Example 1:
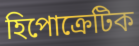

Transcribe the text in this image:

হিপোক্রেটিক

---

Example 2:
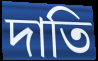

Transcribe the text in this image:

দাতি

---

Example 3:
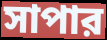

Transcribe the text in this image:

সাপার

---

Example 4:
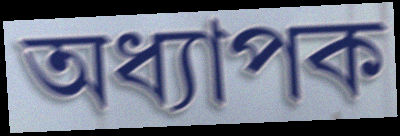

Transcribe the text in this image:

অধ্যাপক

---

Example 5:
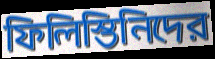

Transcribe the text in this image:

ফিলিস্তিনিদের